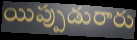
యిప్పుడురారు